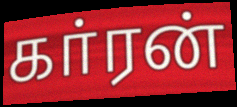
கர்ரன்